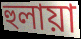
হুলায়া